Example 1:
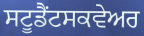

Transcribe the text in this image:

ਸਟੂਡੈਂਟਸਕਵੇਅਰ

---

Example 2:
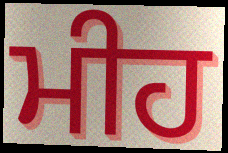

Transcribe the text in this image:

ਮੀਹ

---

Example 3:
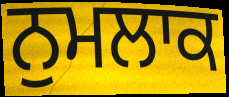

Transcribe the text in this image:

ਨੁਮਲਾਕ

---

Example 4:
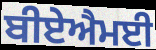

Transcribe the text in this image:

ਬੀਏਐਮਈ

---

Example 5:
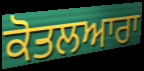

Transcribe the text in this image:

ਕੋਤਲਆਰਾ